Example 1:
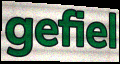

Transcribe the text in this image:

gefiel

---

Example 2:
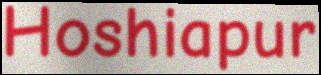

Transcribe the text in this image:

Hoshiapur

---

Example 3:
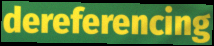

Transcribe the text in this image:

dereferencing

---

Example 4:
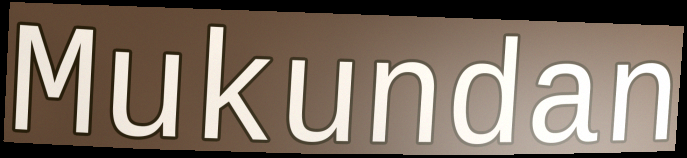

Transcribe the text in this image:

Mukundan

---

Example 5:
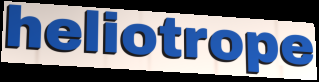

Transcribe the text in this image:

heliotrope